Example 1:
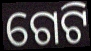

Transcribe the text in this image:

ଗେଟି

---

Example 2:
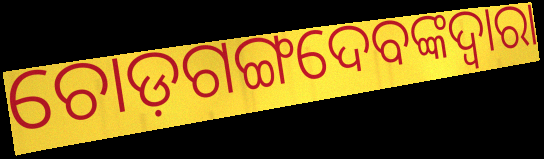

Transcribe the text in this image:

ଚୋଡ଼ଗଙ୍ଗଦେବଙ୍କଦ୍ୱାରା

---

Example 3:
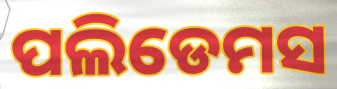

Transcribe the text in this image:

ପଲିଡେମସ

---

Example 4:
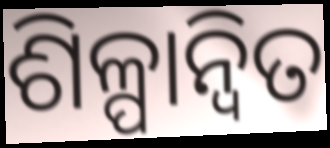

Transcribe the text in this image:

ଶିଳ୍ପାନ୍ବିତ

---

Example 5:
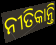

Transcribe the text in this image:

ନୀତିକାନ୍ତି